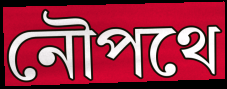
নৌপথে